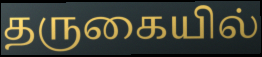
தருகையில்